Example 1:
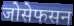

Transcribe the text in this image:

जोसेफसन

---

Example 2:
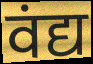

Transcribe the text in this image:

वंद्य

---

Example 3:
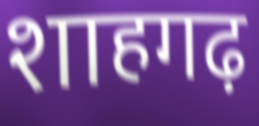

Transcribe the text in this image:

शाहगढ़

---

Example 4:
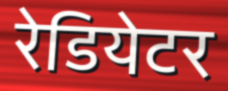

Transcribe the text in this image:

रेडियेटर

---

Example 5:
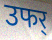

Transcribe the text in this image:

उफर्